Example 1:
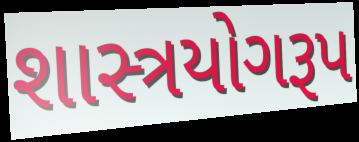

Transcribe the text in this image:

શાસ્ત્રયોગરૂપ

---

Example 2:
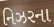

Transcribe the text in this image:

નિઝરના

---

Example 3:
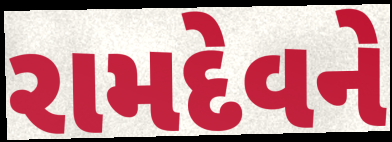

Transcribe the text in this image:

રામદેવને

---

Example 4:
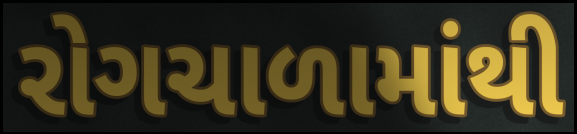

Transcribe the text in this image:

રોગચાળામાંથી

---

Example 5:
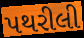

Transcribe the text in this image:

પથરીલી